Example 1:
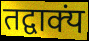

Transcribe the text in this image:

तद्वाक्यं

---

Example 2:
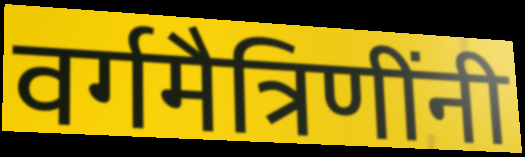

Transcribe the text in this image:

वर्गमैत्रिणींनी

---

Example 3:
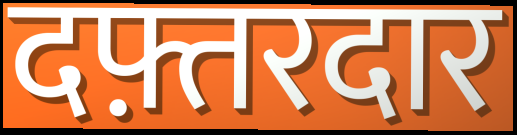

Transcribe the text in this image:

दफ़्तरदार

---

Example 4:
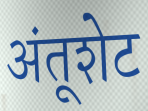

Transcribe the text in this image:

अंतूशेट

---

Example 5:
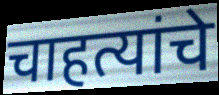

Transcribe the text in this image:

चाहत्यांचे